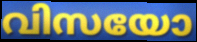
വിസയോ